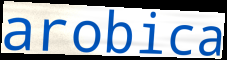
arobica